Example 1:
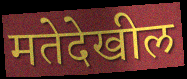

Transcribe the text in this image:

मतेदेखील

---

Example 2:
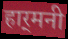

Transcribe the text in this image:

हार्मनी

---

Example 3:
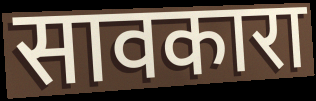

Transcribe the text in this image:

सावकारा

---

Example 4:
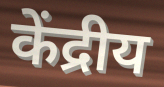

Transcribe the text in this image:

केंद्रीय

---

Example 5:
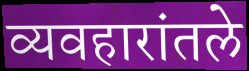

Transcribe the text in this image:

व्यवहारांतले